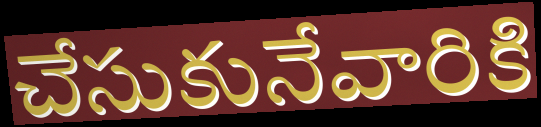
చేసుకునేవారికి